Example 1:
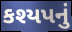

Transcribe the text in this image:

કશ્યપનું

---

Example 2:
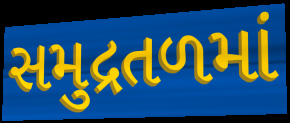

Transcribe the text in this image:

સમુદ્રતળમાં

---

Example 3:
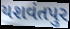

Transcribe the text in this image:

યશવંતપુર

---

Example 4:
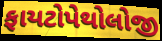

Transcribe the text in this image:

ફાયટોપેથોલોજી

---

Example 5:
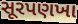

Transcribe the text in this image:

સૂરપણખા